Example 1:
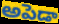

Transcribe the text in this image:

అపెడా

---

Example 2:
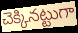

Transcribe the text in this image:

చెక్కినట్టుగా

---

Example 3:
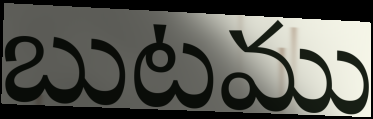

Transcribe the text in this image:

బుటము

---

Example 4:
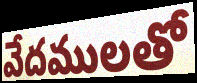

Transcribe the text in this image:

వేదములతో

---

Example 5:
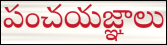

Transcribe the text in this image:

పంచయజ్ఞాలు